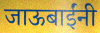
जाऊबाईंनी